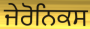
ਜੇਰੋਨਿਕਸ